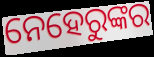
ନେହେରୁଙ୍କର